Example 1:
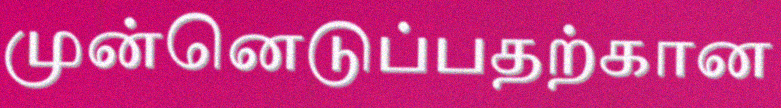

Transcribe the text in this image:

முன்னெடுப்பதற்கான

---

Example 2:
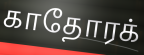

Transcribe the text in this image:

காதோரக்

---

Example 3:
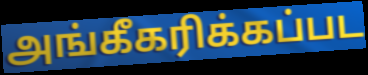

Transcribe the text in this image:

அங்கீகரிக்கப்பட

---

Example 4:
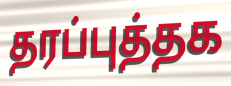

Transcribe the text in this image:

தரப்புத்தக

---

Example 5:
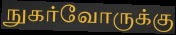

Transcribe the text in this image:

நுகர்வோருக்கு